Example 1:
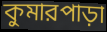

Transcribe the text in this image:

কুমারপাড়া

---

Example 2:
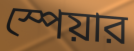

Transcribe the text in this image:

স্পেয়ার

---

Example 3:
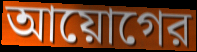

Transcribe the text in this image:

আয়োগের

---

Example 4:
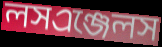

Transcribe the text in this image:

লসএঞ্জেলস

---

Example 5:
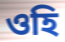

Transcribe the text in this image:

ওহি